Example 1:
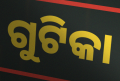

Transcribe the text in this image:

ଗୁଟିକା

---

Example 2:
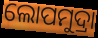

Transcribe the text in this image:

ଲୋପମୁଦ୍ରା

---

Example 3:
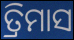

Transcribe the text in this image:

ତ୍ରିମାସ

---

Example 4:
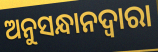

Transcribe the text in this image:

ଅନୁସନ୍ଧାନଦ୍ୱାରା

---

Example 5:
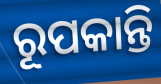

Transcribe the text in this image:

ରୂପକାନ୍ତି